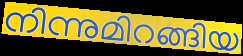
നിന്നുമിറങ്ങിയ